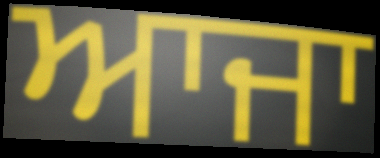
ਆਜਾ